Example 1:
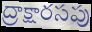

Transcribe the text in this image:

ద్రాక్షారసపు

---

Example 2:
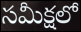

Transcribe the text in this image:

సమీక్షలో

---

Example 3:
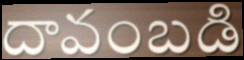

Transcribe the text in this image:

దావంబడి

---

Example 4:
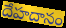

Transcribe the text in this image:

దేహదానం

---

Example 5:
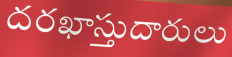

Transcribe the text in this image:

దరఖాస్తుదారులు